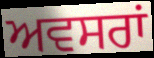
ਅਵਸਰਾਂ